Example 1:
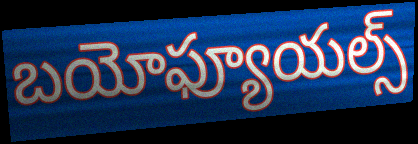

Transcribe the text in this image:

బయోఫ్యూయల్స్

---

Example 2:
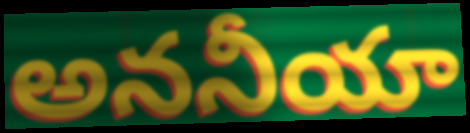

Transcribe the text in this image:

అననీయా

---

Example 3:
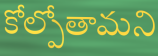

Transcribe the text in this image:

కోల్పోతామని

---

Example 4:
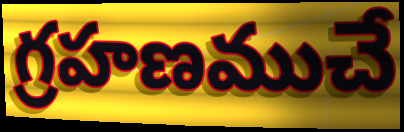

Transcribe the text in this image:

గ్రహణముచే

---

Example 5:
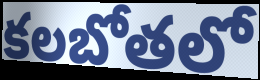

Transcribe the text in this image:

కలబోతలో